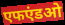
एफएंडओ